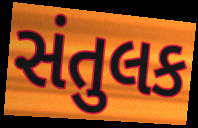
સંતુલક